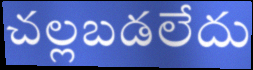
చల్లబడలేదు